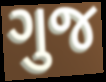
ગુજ